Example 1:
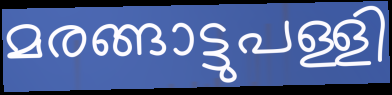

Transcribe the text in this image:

മരങ്ങാട്ടുപള്ളി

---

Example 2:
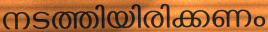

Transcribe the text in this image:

നടത്തിയിരിക്കണം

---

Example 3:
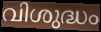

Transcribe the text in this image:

വിശുദ്ധം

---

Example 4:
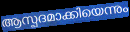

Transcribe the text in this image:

ആസ്പദമാക്കിയെന്നും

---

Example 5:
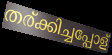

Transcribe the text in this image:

തര്ക്കിച്ചപ്പോള്